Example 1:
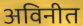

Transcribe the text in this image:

अविनीत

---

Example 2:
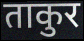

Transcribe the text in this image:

ताकुर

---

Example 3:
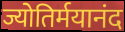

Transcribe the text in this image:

ज्योतिर्मयानंद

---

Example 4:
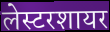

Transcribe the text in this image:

लेस्टरशायर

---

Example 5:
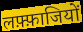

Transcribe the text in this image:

लफ़्फ़ाजियों